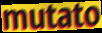
mutato